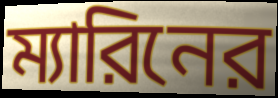
ম্যারিনের